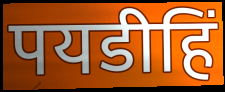
पयडीहिं